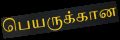
பெயருக்கான